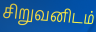
சிறுவனிடம்